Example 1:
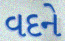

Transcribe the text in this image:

વદને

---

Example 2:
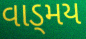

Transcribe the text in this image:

વાડ્મય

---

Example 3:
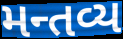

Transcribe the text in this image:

મન્તવ્ય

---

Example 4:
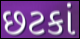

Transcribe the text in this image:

છટકાં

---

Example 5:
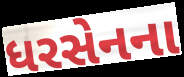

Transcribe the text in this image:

ધરસેનના